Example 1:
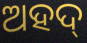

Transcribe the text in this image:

ଅହଦ୍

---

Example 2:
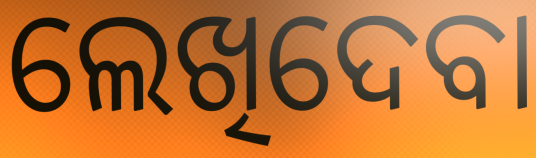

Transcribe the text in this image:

ଲେଖିଦେବା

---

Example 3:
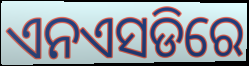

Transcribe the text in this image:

ଏନଏସଡିରେ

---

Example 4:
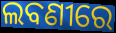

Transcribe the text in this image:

ଲବଣୀରେ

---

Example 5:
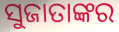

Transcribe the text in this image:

ସୁଜାତାଙ୍କର